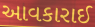
આવકારાઈ